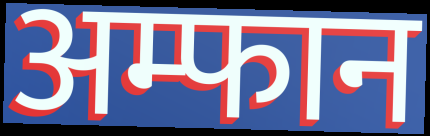
अम्‍फान